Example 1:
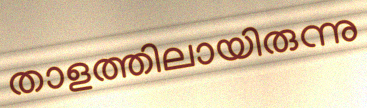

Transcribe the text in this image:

താളത്തിലായിരുന്നു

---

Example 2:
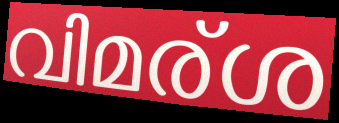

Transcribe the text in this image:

വിമര്ശ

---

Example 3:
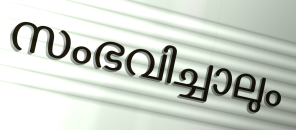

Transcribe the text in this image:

സംഭവിച്ചാലും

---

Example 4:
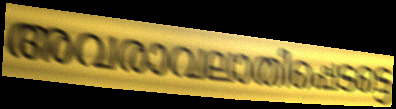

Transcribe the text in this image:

അവരാവലാതിപ്പെടട്ടെ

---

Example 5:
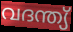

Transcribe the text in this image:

വദന്ത്യ്